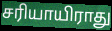
சரியாயிராது